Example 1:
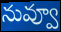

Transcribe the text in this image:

నువ్వూ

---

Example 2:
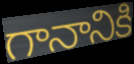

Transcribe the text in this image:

గానానికి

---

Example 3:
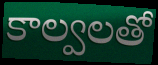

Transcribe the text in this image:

కాల్వలతో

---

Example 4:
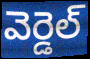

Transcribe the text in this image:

వెర్డెల్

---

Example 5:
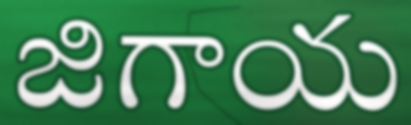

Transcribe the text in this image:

జిగాయ